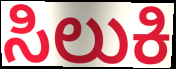
ಸಿಲುಕಿ